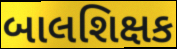
બાલશિક્ષક